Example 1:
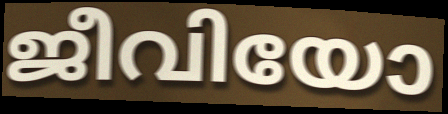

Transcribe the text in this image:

ജീവിയോ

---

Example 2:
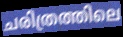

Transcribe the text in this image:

ചരിത്രത്തിലെ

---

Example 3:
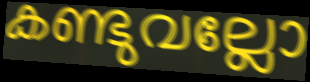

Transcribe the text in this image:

കണ്ടുവല്ലോ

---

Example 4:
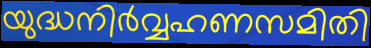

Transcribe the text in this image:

യുദ്ധനിർവ്വഹണസമിതി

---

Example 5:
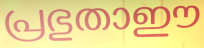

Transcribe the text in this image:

പ്രഭുതാഈ